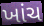
ખાંચ